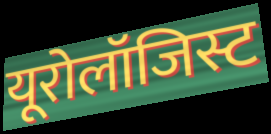
यूरोलॉजिस्ट